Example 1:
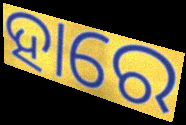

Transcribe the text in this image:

ହାରେ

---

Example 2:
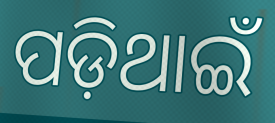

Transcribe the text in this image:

ପଡ଼ିଥାଇଁ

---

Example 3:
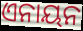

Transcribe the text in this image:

ଏନାୟନ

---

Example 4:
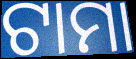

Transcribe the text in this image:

ଟାମା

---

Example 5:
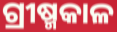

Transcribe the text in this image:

ଗ୍ରୀଷ୍ମକାଳ